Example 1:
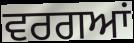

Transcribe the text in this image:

ਵਰਗਆਂ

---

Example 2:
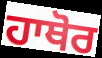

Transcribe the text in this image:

ਹਾਥੋਰ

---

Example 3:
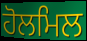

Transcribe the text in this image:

ਹੋਲਮਿਲ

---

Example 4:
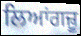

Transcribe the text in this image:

ਲਿਆਂਗਜ਼ੂ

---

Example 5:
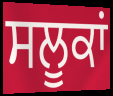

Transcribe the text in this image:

ਸਲੂਕਾਂ